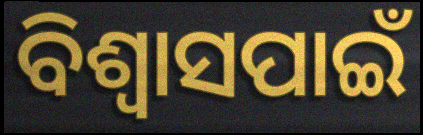
ବିଶ୍ୱାସପାଇଁ